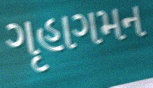
ગૃહાગમન